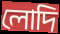
লোদি